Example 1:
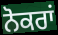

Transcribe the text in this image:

ਨੋਕਰਾਂ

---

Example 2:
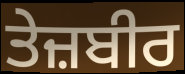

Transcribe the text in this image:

ਤੇਜ਼ਬੀਰ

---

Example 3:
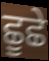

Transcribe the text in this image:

ਛੂਛੇ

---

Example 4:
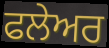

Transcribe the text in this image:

ਫਲੇਅਰ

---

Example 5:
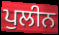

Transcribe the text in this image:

ਪੁਲੀਨ